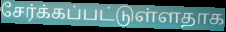
சேர்க்கப்பட்டுள்ளதாக